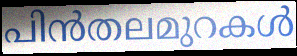
പിൻതലമുറകൾ